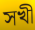
সখী